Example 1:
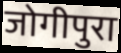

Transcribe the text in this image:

जोगीपुरा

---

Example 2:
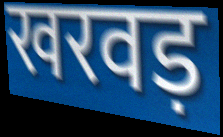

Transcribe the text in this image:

खरवड़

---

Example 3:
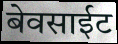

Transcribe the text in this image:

बेवसाईट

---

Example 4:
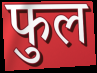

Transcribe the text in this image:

फुल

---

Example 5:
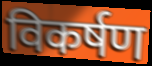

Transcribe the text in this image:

विकर्षण